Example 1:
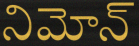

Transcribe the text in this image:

నిమోన్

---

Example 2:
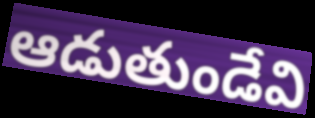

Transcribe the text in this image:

ఆడుతుండేవి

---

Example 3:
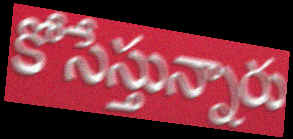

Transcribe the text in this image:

కోసేస్తున్నారు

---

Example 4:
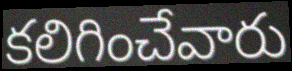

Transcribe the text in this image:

కలిగించేవారు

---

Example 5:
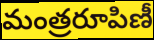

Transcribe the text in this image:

మంత్రరూపిణీ